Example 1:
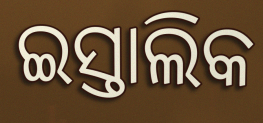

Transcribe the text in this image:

ଇସ୍ତାଲିକ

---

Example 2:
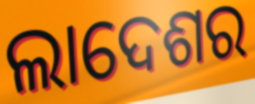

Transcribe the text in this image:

ଲାଦେଶର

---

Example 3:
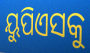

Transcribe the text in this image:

ୟୁପିଏସକୁ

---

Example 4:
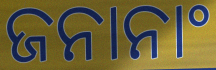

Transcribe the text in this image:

ଜନାନାଂ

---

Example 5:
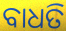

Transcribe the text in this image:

ବାଧତି